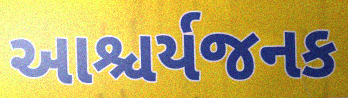
આશ્ચર્યજનક